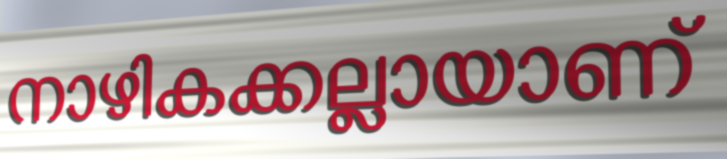
നാഴികക്കല്ലായാണ്